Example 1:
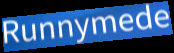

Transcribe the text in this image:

Runnymede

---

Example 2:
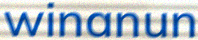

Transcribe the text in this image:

winanun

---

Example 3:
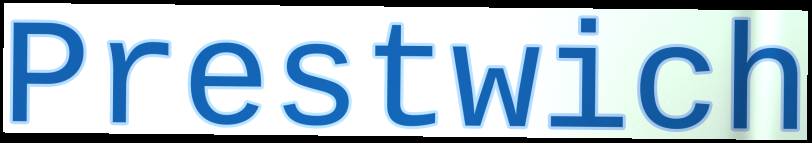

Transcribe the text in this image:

Prestwich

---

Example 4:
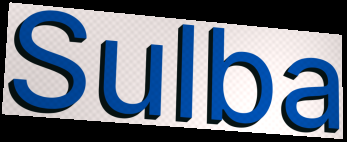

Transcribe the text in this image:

Sulba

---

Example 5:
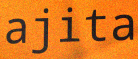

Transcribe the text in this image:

ajita